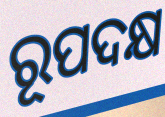
ରୂପଦକ୍ଷ